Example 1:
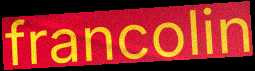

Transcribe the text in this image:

francolin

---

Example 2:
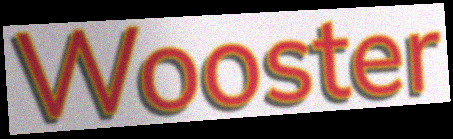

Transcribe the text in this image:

Wooster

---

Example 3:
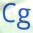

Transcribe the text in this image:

Cg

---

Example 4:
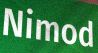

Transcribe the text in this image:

Nimod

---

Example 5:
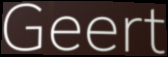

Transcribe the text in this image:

Geert